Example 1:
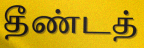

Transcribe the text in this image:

தீண்டத்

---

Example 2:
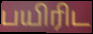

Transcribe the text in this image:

பயிரிட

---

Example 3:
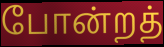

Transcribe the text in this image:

போன்றத்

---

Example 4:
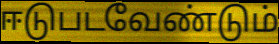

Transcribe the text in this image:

ஈடுபடவேண்டும்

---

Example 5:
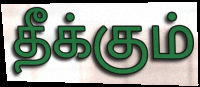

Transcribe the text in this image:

தீக்கும்